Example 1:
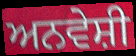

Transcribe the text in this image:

ਅਨਵੇਸ਼ੀ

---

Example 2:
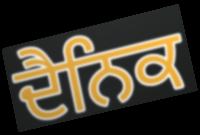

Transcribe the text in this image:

ਦੈਨਿਕ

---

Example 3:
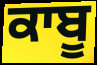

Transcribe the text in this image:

ਕਾਬੂ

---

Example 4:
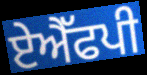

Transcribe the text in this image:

ਏਐੱਫਪੀ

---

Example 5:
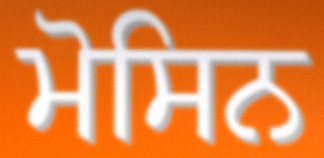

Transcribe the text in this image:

ਮੋਸਿਨ